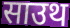
साउथ